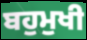
ਬਹੁਮੁਖੀ